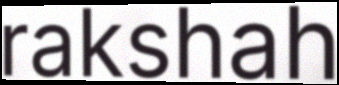
rakshah